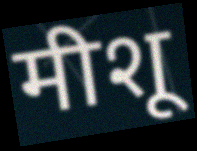
मीशू